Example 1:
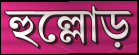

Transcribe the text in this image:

হুল্লোড়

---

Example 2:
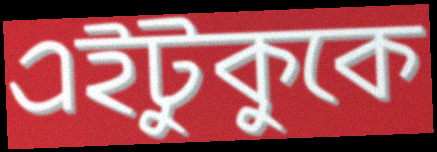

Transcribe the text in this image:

এইটুকুকে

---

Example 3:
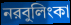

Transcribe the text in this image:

নরবুলিংকা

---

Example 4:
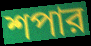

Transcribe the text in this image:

শপার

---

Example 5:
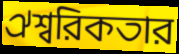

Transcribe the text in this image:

ঐশ্বরিকতার